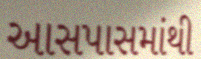
આસપાસમાંથી